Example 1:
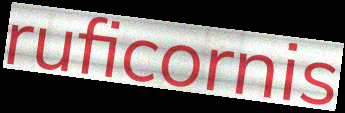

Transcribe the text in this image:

ruficornis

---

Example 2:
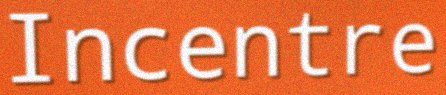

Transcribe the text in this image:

Incentre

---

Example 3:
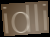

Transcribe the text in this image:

idli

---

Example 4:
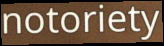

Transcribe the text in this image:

notoriety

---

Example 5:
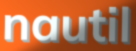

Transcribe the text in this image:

nautil